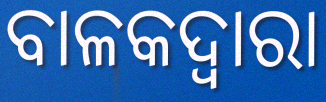
ବାଳକଦ୍ୱାରା